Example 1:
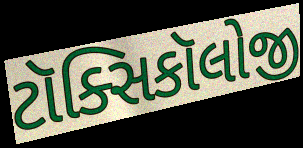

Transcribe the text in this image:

ટૉક્સિકૉલોજી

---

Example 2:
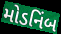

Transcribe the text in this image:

મોડનિંબ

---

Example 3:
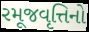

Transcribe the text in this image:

રમૂજવૃત્તિનો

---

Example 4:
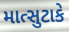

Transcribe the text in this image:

માત્સુટાકે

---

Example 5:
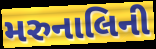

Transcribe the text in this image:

મરુનાલિની